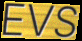
EVS